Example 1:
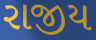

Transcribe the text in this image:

રાજીય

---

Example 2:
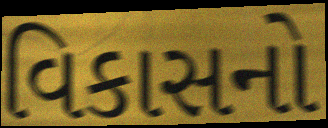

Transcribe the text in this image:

વિકાસનો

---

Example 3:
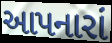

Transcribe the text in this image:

આપનારાં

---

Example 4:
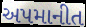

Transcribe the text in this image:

અપમાનીત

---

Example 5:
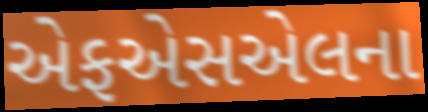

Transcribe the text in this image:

એફએસએલના